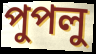
পুপলু